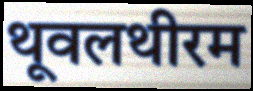
थूवलथीरम